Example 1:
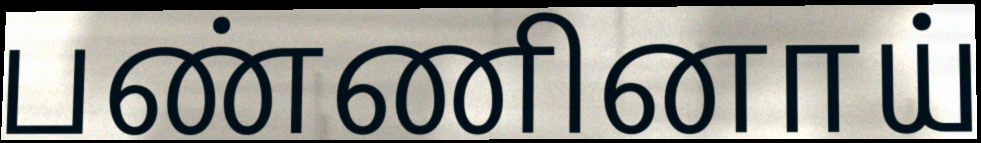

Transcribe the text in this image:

பண்ணினாய்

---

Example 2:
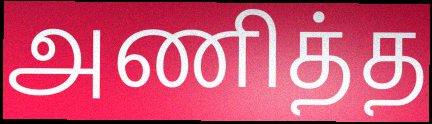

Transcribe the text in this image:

அணித்த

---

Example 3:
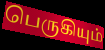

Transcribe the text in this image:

பெருகியும்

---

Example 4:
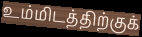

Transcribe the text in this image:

உம்மிடத்திற்குக்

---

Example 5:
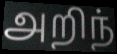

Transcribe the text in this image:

அறிந்